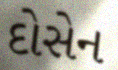
દોસેન